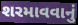
શરમાવવાનું